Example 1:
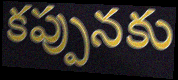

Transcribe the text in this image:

కప్పునకు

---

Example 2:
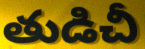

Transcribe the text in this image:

తుడిచీ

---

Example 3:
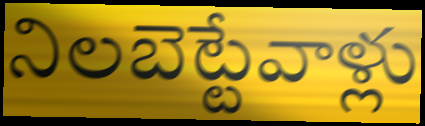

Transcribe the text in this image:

నిలబెట్టేవాళ్లు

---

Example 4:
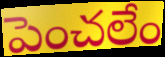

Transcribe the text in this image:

పెంచలేం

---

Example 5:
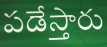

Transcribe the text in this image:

పడేస్తారు